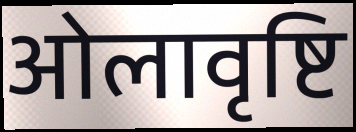
ओलावृष्टि